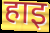
हाइ